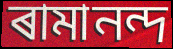
ৰামানন্দ